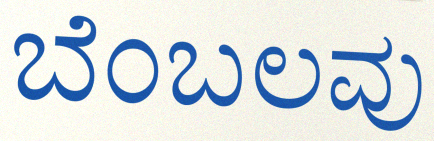
ಬೆಂಬಲವು